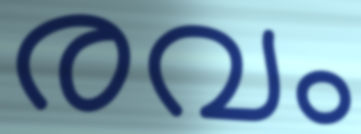
രവം